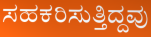
ಸಹಕರಿಸುತ್ತಿದ್ದವು